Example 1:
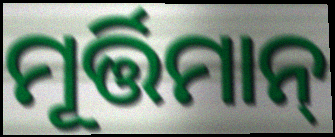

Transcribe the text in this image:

ମୂର୍ତ୍ତିମାନ୍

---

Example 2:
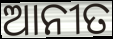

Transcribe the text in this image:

ଆନୀତ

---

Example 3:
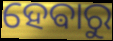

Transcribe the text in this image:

ହେଵାରୁ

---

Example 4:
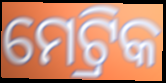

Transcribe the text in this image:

ମେଟ୍ରିକ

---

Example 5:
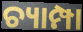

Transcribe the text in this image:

ଚ୍ୟାମ୍ପା